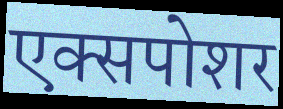
एक्सपोशर